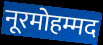
नूरमोहम्मद